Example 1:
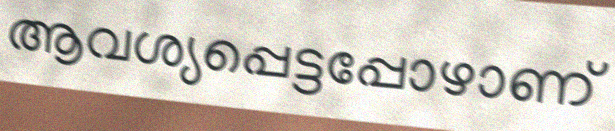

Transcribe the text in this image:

ആവശ്യപ്പെട്ടപ്പോഴാണ്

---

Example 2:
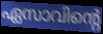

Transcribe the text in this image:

ഏസാവിന്റെ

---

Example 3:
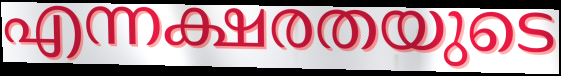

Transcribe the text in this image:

എന്നക്ഷരതയുടെ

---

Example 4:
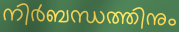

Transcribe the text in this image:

നിർബന്ധത്തിനും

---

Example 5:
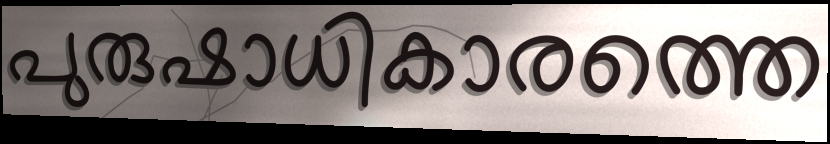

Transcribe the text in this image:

പുരുഷാധികാരത്തെ